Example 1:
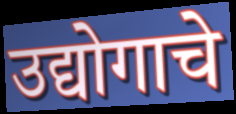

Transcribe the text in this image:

उद्योगाचे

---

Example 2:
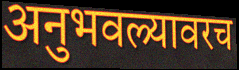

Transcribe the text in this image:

अनुभवल्यावरच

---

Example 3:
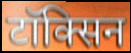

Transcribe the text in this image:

टॉक्सिन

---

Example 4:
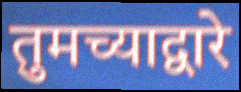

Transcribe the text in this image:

तुमच्याद्वारे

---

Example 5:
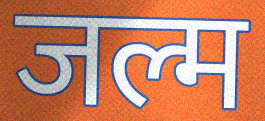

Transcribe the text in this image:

जल्म